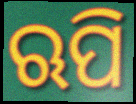
ଋପି